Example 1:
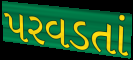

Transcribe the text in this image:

પરવડતાં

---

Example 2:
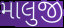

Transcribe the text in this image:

માલુજી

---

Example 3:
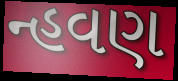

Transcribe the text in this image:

ન્હવણ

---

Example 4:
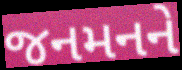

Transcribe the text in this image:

જનમનને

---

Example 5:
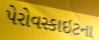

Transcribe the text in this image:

પેરોવસ્કાઇટના